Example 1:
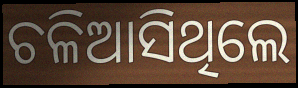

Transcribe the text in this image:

ଚଳିଆସିଥିଲେ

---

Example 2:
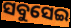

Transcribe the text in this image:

ସବୁସେଇ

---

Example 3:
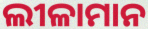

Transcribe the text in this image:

ଲୀଳାମାନ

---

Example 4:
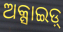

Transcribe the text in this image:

ଅକ୍ସାଇଡ଼୍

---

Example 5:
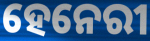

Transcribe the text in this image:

ହେନେରୀ